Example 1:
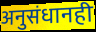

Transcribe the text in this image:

अनुसंधानही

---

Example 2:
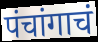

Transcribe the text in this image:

पंचांगाचं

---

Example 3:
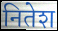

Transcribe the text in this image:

नितेश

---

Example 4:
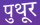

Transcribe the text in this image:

पुथूर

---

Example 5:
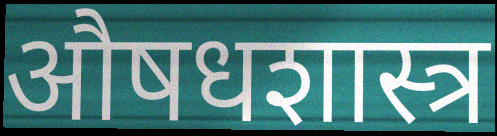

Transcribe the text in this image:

औषधशास्त्र